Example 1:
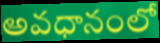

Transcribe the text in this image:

అవధానంలో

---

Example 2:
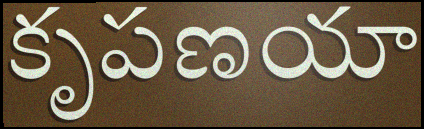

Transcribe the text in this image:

కృపణయా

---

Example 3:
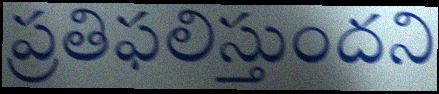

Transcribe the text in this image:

ప్రతిఫలిస్తుందని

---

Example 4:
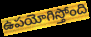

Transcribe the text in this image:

ఉపయోగిస్తోంది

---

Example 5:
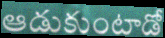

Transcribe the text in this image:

ఆడుకుంటాడో